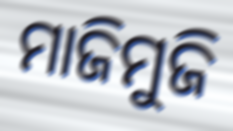
ମାଜିମୁଜି